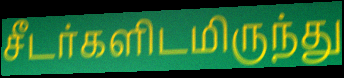
சீடர்களிடமிருந்து